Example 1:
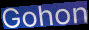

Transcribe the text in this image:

Gohon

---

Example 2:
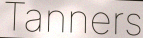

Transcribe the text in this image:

Tanners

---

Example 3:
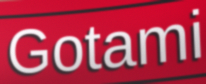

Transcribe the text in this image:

Gotami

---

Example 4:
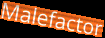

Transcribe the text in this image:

Malefactor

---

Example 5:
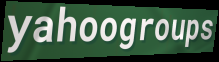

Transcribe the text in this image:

yahoogroups